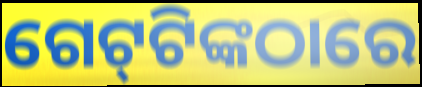
ଗେଟ୍‌ଟିଙ୍କଠାରେ